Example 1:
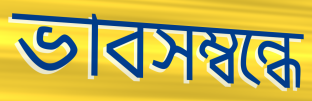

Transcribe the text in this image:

ভাবসম্বন্ধে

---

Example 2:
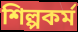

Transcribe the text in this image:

শিল্পকর্ম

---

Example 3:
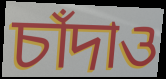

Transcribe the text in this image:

চাঁদাও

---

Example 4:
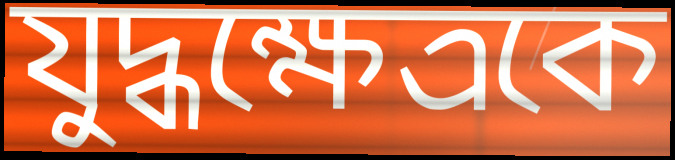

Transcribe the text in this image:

যুদ্ধক্ষেত্রকে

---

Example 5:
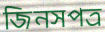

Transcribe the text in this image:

জিনসপত্র